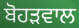
ਬੋਹੜਵਾਲ